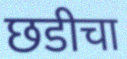
छडीचा